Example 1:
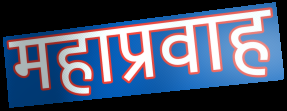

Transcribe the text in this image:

महाप्रवाह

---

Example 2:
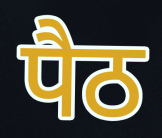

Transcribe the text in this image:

पैठ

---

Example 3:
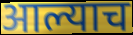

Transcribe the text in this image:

आल्याच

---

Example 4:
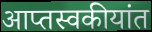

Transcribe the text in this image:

आप्तस्वकीयांत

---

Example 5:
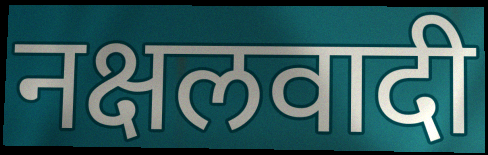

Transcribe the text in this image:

नक्षलवादी